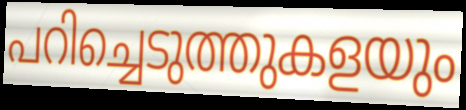
പറിച്ചെടുത്തുകളയും